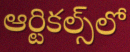
ఆర్టికల్స్‌లో